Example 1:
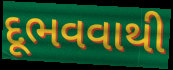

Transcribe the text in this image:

દૂભવવાથી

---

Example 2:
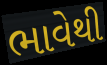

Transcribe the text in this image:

ભાવેથી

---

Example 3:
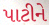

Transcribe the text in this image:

પાટીને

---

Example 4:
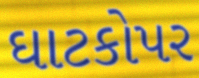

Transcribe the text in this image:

ઘાટકોપર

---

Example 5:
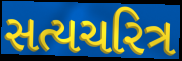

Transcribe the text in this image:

સત્યચરિત્ર